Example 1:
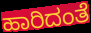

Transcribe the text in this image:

ಹಾರಿದಂತೆ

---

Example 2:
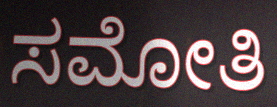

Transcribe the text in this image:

ಸಮೋತಿ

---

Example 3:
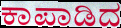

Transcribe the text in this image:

ಕಾಪಾಡಿದ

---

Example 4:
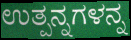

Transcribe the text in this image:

ಉತ್ಪನ್ನಗಳನ್ನ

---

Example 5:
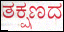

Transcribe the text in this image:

ತಕ್ಷಣದ